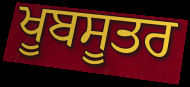
ਖੂਬਸੂਤਰ